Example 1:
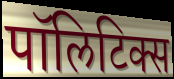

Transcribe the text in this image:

पॉलिटिक्स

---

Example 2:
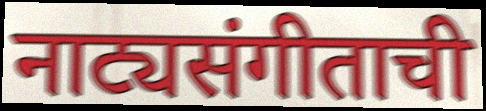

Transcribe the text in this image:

नाट्यसंगीताची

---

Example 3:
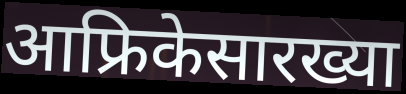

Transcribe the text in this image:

आफ्रिकेसारख्या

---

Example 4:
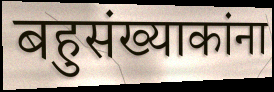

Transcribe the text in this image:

बहुसंख्याकांना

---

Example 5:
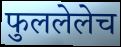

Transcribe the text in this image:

फुललेलेच